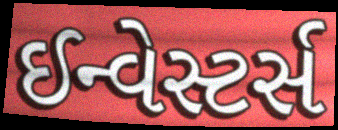
ઈન્વેસ્ટર્સ